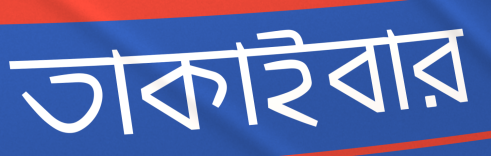
তাকাইবার